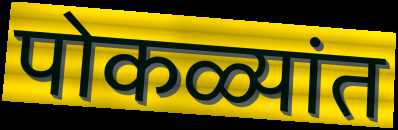
पोकळ्यांत